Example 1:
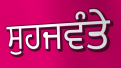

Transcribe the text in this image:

ਸੁਹਜਵੰਤੇ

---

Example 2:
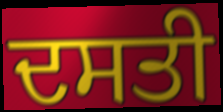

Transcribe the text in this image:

ਦਸਤੀ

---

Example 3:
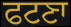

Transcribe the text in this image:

ਫਟਣਾ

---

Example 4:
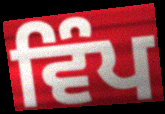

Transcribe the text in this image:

ਵਿੰਪ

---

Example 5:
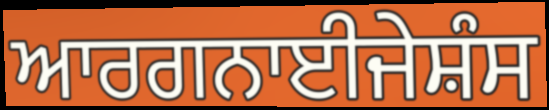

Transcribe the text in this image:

ਆਰਗਨਾਈਜੇਸ਼ੰਸ